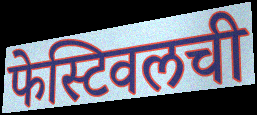
फेस्टिवलची